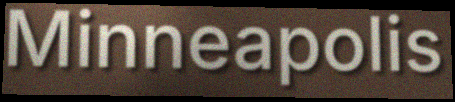
Minneapolis